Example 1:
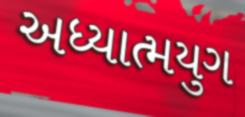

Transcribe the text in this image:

અધ્યાત્મયુગ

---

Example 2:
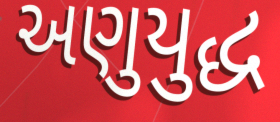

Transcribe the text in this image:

અણુયુદ્ધ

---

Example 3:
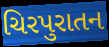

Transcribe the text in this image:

ચિરપુરાતન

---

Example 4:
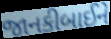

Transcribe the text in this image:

જાનકીબાઈને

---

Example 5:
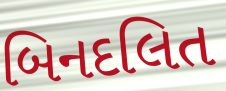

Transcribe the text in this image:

બિનદલિત